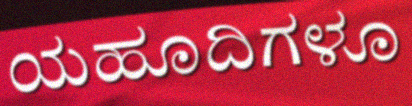
ಯಹೂದಿಗಳೂ